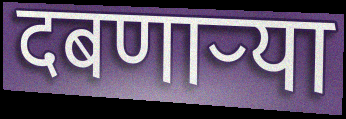
दबणाऱ्या